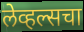
लेव्हल्सचा